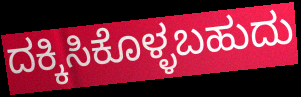
ದಕ್ಕಿಸಿಕೊಳ್ಳಬಹುದು